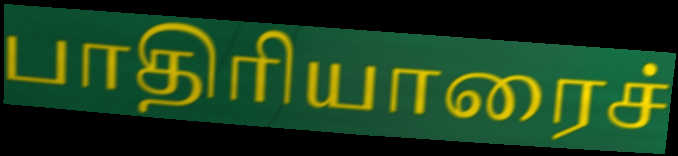
பாதிரியாரைச்